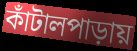
কাঁটালপাড়ায়